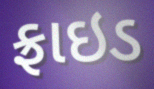
ફ્રાઇડ